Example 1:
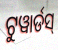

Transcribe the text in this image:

ଟୁୱାର୍ଡସ୍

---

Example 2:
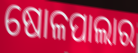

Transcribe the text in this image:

ଷୋଳପାଲାର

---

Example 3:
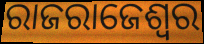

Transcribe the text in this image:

ରାଜରାଜେଶ୍ଵର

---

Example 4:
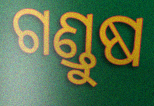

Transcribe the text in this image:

ଗଣ୍ଡୁଷ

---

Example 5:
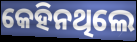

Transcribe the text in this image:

କେହିନଥିଲେ